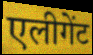
एलीगेंट